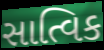
સાત્વિક